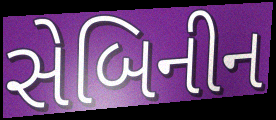
સેબિનીન